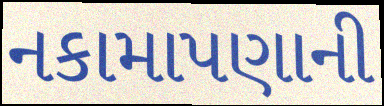
નકામાપણાની